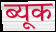
ब्यूक